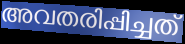
അവതരിപ്പിച്ചത്